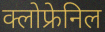
क्लोफ्रेनिल